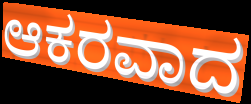
ಆಕರವಾದ